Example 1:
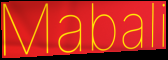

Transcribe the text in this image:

Mabali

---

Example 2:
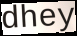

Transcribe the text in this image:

dhey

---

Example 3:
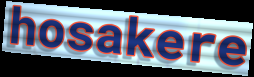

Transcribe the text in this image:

hosakere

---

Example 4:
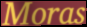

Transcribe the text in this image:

Moras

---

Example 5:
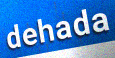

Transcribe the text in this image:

dehada